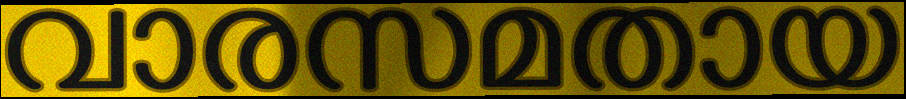
വാരസമതായ